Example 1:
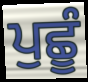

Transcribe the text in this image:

ਪੁਛੂੰ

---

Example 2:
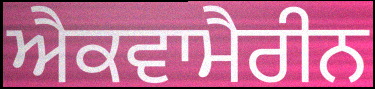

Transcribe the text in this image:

ਐਕਵਾਮੈਰੀਨ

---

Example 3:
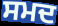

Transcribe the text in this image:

ਸਮਦ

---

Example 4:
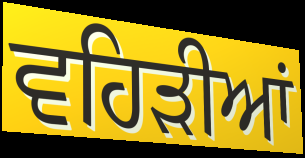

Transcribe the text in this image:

ਵਹਿੜੀਆਂ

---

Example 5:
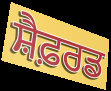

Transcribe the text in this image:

ਸ਼ੈਫ਼ਰਡ